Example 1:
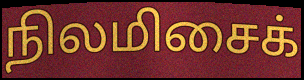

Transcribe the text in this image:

நிலமிசைக்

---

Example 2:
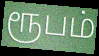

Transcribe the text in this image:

ரூபம்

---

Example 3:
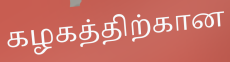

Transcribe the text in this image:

கழகத்திற்கான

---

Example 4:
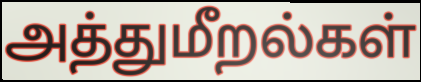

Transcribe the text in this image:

அத்துமீறல்கள்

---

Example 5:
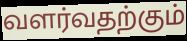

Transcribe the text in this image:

வளர்வதற்கும்